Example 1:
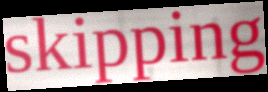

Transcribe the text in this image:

skipping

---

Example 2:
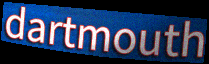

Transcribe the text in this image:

dartmouth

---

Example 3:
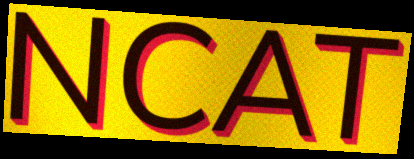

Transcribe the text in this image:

NCAT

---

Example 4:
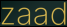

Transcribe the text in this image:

zaad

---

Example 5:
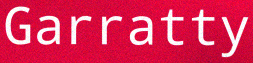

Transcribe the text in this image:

Garratty